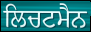
ਲਿਚਟਮੈਨ